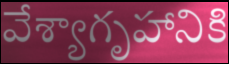
వేశ్యాగృహానికి